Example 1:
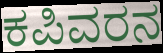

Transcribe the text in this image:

ಕಪಿವರನ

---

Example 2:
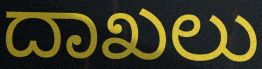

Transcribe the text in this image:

ದಾಖಲು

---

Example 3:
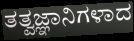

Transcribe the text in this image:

ತತ್ವಜ್ಞಾನಿಗಳಾದ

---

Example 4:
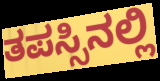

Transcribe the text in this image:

ತಪಸ್ಸಿನಲ್ಲಿ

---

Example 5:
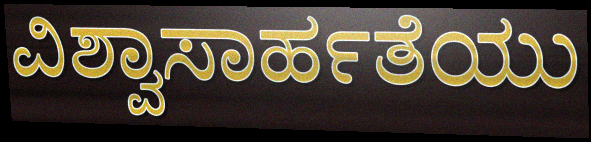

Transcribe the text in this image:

ವಿಶ್ವಾಸಾರ್ಹತೆಯು